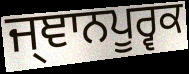
ਜ੍ਞਾਨਪੂਰ੍ਵਕ